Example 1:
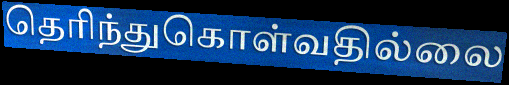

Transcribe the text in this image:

தெரிந்துகொள்வதில்லை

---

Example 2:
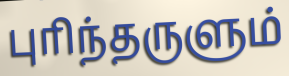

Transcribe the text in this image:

புரிந்தருளும்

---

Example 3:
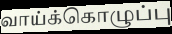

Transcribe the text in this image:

வாய்க்கொழுப்பு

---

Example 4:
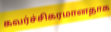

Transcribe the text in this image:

கவர்ச்சிகரமானதாக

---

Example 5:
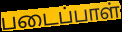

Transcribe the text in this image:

படைப்பாள்